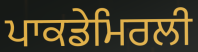
ਪਾਕਡੇਮਿਰਲੀ